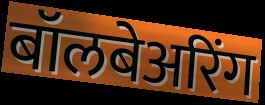
बॉलबेअरिंग